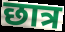
छात्र